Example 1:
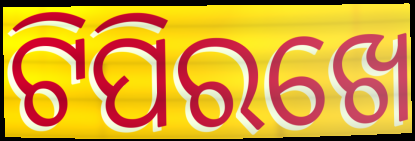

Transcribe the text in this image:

ଟିପିରଖେ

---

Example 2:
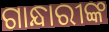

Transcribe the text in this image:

ଗାନ୍ଧାରୀଙ୍କ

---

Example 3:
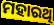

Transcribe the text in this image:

ମହାରଥି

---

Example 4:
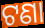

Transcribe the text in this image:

ଟଣା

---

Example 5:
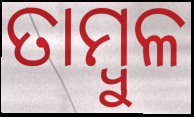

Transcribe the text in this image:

ତାମ୍ୱୁଳ